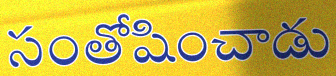
సంతోషించాడు